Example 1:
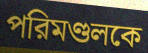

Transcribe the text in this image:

পরিমণ্ডলকে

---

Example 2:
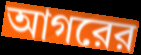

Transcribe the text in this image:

আগরের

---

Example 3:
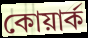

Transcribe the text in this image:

কোয়ার্ক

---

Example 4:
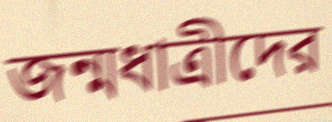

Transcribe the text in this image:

জন্মধাত্রীদের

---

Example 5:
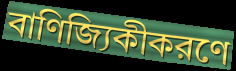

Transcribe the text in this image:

বাণিজ্যিকীকরণে